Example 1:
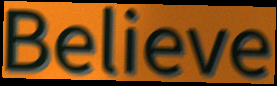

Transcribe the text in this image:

Believe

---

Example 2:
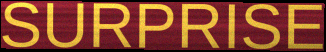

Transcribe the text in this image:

SURPRISE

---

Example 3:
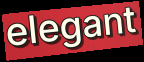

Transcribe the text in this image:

elegant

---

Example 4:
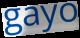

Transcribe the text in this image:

gayo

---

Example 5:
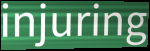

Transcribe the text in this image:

injuring